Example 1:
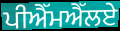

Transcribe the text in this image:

ਪੀਐੱਮਐੱਲਏ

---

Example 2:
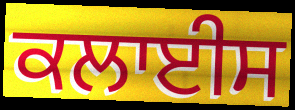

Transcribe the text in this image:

ਕਲਾਈਸ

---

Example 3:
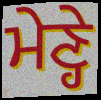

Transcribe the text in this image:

ਮੇਣ੍ਹੇ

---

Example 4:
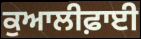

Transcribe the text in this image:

ਕੁਆਲੀਫ਼ਾਈ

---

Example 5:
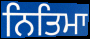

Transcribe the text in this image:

ਨਿਤਿਮਾ